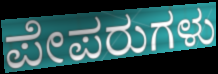
ಪೇಪರುಗಳು